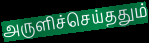
அருளிச்செய்ததும்